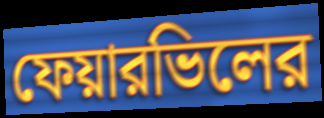
ফেয়ারভিলের